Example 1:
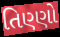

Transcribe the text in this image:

તિણ્ણો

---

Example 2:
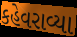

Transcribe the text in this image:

કહેવરાવ્યા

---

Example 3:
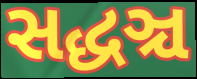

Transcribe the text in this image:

સદ્ધઞ્ચ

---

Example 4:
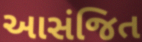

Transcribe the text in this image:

આસંજિત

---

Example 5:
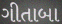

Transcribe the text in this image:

ગીતાબા